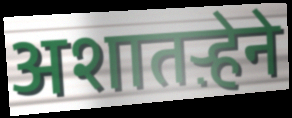
अशातऱ्‍हेने